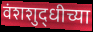
वंशशुद्धीच्या